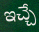
ఇచ్చే